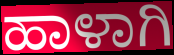
ಹಾಳಾಗಿ